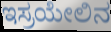
ಇಸ್ರಯೇಲಿನ